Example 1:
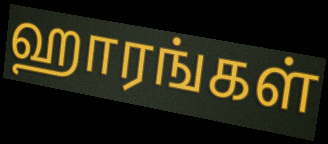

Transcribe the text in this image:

ஹாரங்கள்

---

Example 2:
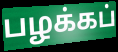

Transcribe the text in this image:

பழக்கப்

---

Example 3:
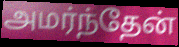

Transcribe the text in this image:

அமர்ந்தேன்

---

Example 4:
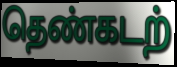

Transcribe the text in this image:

தெண்கடற்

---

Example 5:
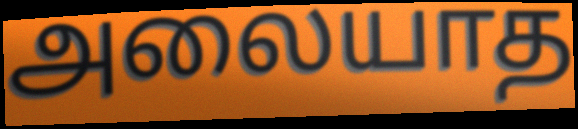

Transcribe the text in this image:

அலையாத